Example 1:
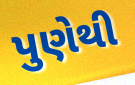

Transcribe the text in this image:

પુણેથી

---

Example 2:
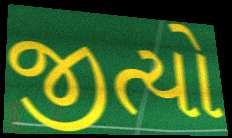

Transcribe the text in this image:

જીત્યો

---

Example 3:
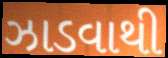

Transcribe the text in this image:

ઝાડવાથી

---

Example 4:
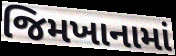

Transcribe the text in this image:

જિમખાનામાં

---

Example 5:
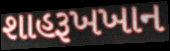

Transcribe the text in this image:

શાહરૂખખાન